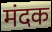
मंदक